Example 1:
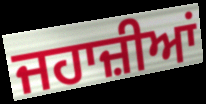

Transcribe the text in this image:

ਜਹਾਜ਼ੀਆਂ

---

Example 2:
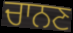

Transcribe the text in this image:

ਚਾਨਣ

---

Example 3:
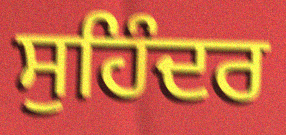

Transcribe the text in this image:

ਸੁਹਿੰਦਰ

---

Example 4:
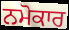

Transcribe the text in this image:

ਨਮੋਕਾਰ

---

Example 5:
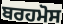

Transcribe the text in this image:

ਬਰਹਮੋਸ